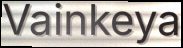
Vainkeya